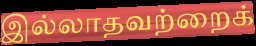
இல்லாதவற்றைக்